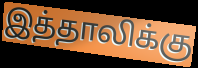
இத்தாலிக்கு